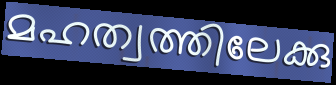
മഹത്വത്തിലേക്കു